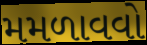
મમળાવવો